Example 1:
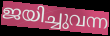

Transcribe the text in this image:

ജയിച്ചുവന്ന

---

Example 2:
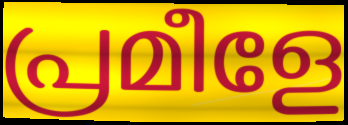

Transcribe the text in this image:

പ്രമീളേ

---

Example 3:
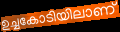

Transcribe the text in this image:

ഉച്ചകോടിയിലാണ്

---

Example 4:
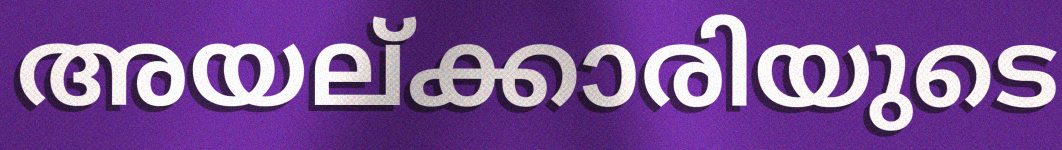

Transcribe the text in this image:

അയല്ക്കാരിയുടെ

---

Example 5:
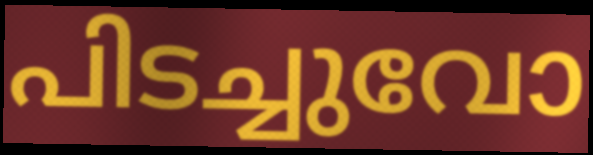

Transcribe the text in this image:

പിടച്ചുവോ